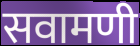
सवामणी